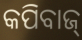
କପିବାଜ୍